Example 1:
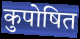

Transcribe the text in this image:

कुपोषित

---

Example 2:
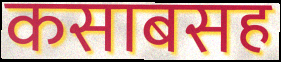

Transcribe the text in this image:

कसाबसह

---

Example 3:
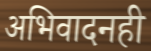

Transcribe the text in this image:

अभिवादनही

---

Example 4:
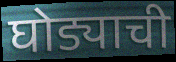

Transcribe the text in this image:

घोड्याची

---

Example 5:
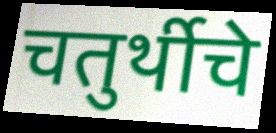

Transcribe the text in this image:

चतुर्थीचे